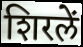
शिरलें